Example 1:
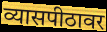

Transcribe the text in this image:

व्यासपीठावर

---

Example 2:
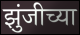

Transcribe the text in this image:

झुंजीच्या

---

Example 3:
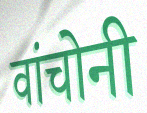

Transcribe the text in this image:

वांचोनी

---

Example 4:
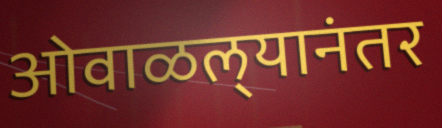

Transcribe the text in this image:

ओवाळल्यानंतर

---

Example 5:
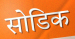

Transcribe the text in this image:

सोडिक